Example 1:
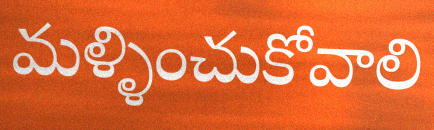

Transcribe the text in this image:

మళ్ళించుకోవాలి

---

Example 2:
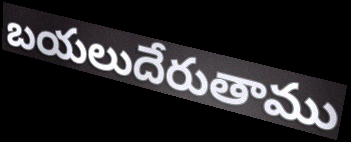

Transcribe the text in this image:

బయలుదేరుతాము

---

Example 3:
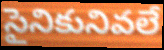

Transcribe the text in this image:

సైనికునివలే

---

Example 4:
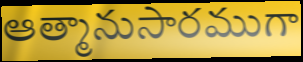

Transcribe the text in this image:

ఆత్మానుసారముగా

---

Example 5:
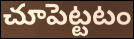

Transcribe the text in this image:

చూపెట్టటం